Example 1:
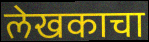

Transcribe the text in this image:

लेखकाचा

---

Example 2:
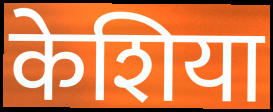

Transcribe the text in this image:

केशिया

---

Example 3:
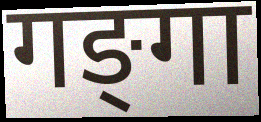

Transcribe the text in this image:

गङ्गा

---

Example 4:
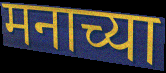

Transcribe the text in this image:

मनाच्या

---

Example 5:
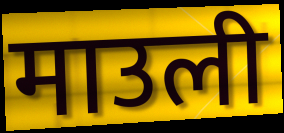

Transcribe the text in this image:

माउली